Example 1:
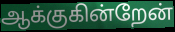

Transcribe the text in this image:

ஆக்குகின்றேன்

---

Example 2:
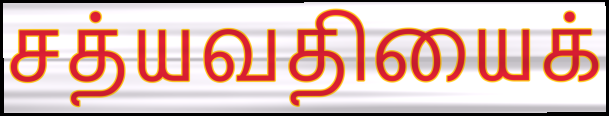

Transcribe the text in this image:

சத்யவதியைக்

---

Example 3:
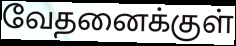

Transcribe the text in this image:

வேதனைக்குள்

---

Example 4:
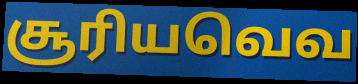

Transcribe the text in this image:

சூரியவெவ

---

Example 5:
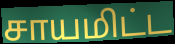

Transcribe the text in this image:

சாயமிட்ட